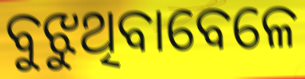
ବୁଝୁଥିବାବେଳେ